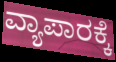
ವ್ಯಾಪಾರಕ್ಕೆ